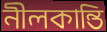
নীলকান্তি